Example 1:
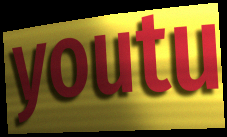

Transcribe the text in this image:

youtu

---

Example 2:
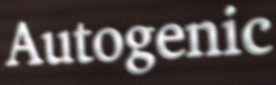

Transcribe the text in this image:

Autogenic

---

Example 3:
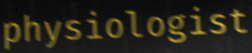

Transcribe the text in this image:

physiologist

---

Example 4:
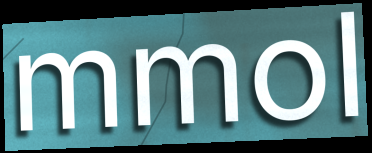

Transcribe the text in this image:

mmol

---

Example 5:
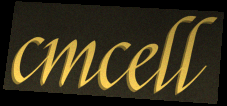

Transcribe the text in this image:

cmcell